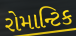
રોમાન્ટિક